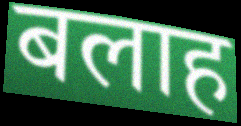
बलाह